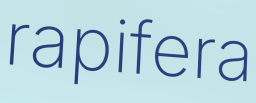
rapifera